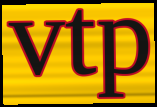
vtp